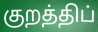
குறத்திப்